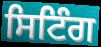
ਸਿਟਿੰਗ